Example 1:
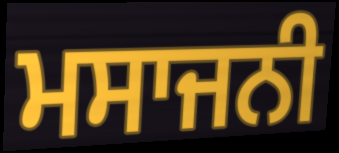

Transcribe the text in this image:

ਮਸਾਜਨੀ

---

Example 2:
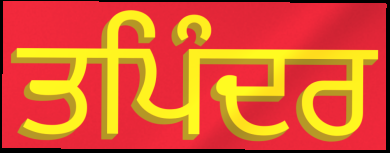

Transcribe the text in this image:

ਤਪਿੰਦਰ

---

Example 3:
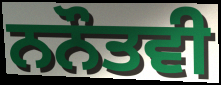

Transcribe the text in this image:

ਨਨੌਤਵੀ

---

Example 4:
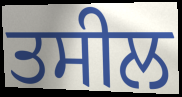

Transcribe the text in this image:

ਤਸੀਲ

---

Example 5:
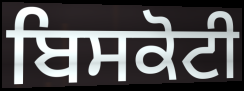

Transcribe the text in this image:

ਬਿਸਕੋਟੀ